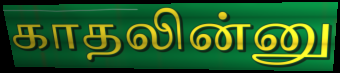
காதலின்னு